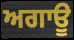
ਅਗਾਊ